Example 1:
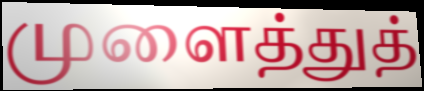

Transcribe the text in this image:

முளைத்துத்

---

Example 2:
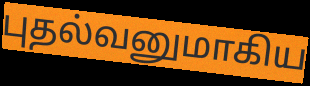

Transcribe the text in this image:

புதல்வனுமாகிய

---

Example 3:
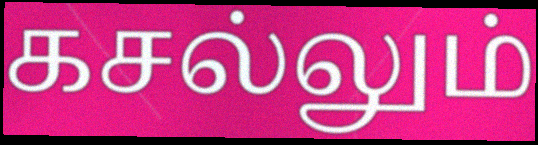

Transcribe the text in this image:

கசல்லும்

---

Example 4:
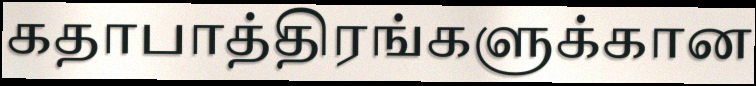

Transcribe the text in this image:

கதாபாத்திரங்களுக்கான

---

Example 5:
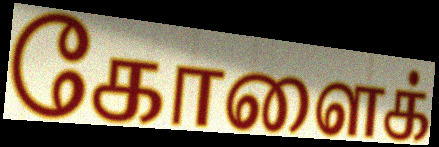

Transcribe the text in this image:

கோளைக்